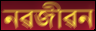
নৱজীৱন